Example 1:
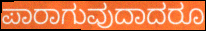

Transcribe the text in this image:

ಪಾರಾಗುವುದಾದರೂ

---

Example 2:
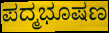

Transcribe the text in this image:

ಪದ್ಮಭೂಷಣ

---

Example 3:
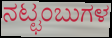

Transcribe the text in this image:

ನಟ್ಟಂಬುಗಳ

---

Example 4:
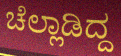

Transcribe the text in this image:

ಚೆಲ್ಲಾಡಿದ್ದ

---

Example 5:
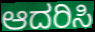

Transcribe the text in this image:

ಆದರಿಸಿ